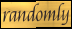
randomly